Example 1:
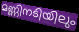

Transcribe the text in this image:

മണ്ണിനടിയിലും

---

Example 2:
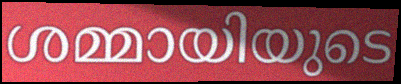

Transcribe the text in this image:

ശമ്മായിയുടെ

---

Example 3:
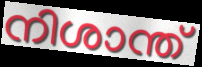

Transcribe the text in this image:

നിശാന്ത്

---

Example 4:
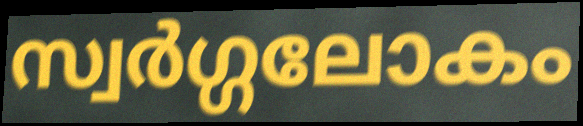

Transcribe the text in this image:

സ്വർഗ്ഗലോകം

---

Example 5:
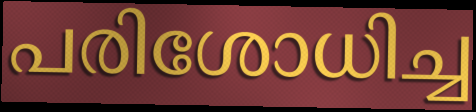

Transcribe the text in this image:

പരിശോധിച്ച